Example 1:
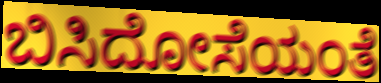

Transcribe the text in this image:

ಬಿಸಿದೋಸೆಯಂತೆ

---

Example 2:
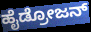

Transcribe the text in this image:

ಹೈಡ್ರೋಜನ್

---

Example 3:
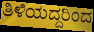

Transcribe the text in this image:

ತಿಳಿಯದ್ದರಿಂದ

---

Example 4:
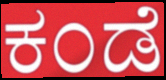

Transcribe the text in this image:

ಕಂಡೆ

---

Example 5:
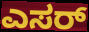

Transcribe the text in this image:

ಎಸರ್